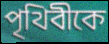
পৃথিবীকে